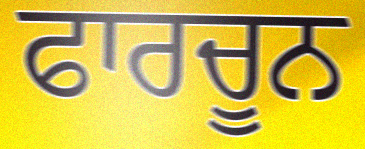
ਫਾਰਚੂਨ